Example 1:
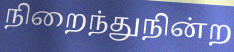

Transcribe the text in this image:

நிறைந்துநின்ற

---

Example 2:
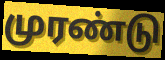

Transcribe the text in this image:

முரண்டு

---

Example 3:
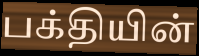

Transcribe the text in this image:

பக்தியின்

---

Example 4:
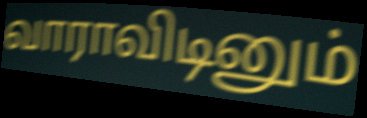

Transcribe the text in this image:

வாராவிடினும்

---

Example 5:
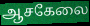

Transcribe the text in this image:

ஆசகேலை